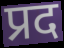
प्रद